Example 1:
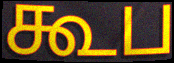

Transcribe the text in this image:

கூப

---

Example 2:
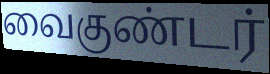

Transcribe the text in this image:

வைகுண்டர்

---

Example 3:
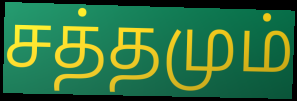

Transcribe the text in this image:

சத்தமும்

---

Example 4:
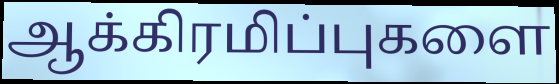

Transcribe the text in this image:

ஆக்கிரமிப்புகளை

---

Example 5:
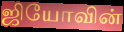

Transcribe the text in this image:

ஜியோவின்